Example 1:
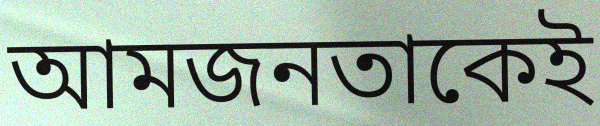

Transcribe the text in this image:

আমজনতাকেই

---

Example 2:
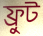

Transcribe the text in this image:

ফ্রুট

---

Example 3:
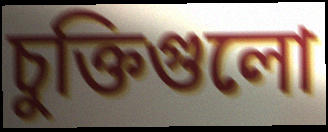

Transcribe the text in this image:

চুক্তিগুলো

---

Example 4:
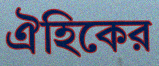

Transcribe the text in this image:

ঐহিকের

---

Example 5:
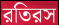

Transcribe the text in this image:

রতিরস